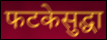
फटकेसुद्धा